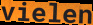
vielen